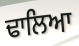
ਢਾਲਿਆ